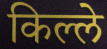
किल्ले